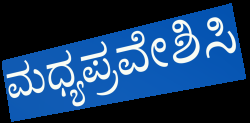
ಮಧ್ಯಪ್ರವೇಶಿಸಿ